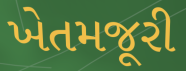
ખેતમજૂરી